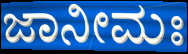
ಜಾನೀಮಃ